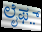
ಲೈಫ಼್